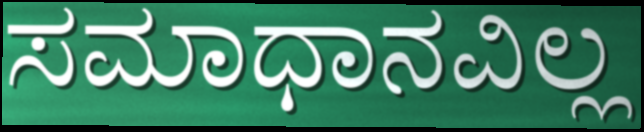
ಸಮಾಧಾನವಿಲ್ಲ